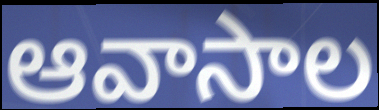
ఆవాసాల